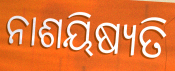
ନାଶୟିଷ୍ୟତି